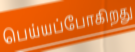
பெய்யப்போகிறது